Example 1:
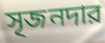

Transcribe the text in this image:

সৃজনদার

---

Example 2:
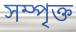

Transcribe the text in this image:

সম্পৃক্ত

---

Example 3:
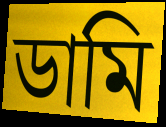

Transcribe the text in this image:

ডামি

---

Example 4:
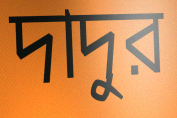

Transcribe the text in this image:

দাদুর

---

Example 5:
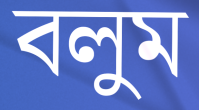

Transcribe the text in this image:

বলুম